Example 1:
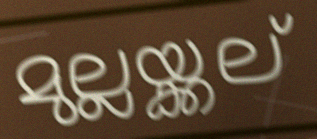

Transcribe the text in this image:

മുല്ലയ്ക്കല്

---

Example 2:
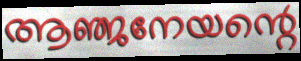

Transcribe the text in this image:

ആഞ്ജനേയന്റെ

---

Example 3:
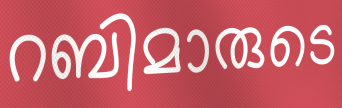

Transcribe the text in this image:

റബിമാരുടെ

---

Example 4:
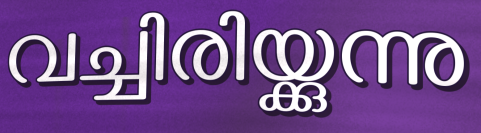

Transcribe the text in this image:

വച്ചിരിയ്ക്കുന്നു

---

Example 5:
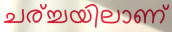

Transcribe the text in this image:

ചര്ച്ചയിലാണ്